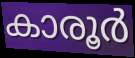
കാരൂർ